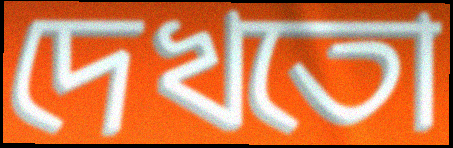
দেখতো